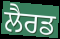
ਲੈਰਡ